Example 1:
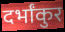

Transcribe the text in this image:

दर्भांकुर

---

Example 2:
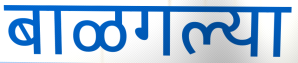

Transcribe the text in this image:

बाळगल्या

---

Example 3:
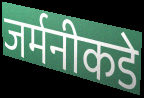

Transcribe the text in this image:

जर्मनीकडे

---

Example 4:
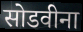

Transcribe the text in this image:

सोडवीना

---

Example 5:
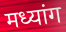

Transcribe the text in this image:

मध्यांग